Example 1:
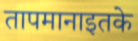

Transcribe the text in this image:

तापमानाइतके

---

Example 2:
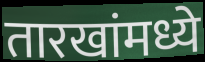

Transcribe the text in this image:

तारखांमध्ये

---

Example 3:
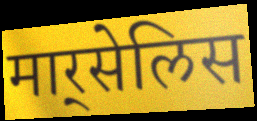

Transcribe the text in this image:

मार्सेलिस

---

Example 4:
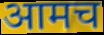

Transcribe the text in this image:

आमच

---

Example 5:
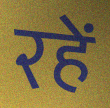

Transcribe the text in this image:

रहें